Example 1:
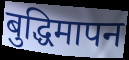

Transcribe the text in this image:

बुद्धिमापन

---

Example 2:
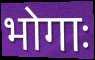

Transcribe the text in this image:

भोगाः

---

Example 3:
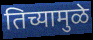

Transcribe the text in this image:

तिच्यामुळे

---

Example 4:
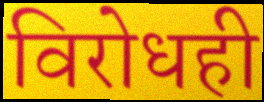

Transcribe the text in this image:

विरोधही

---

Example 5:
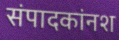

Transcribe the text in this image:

संपादकांनश